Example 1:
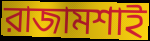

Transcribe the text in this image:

রাজামশাই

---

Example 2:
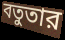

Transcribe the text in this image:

বতুতার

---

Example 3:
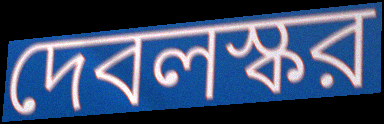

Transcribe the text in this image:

দেবলস্কর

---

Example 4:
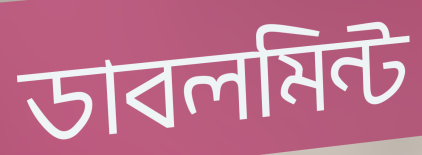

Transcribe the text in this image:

ডাবলমিন্ট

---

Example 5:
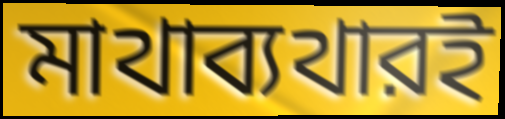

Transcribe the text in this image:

মাথাব্যথারই